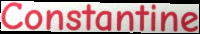
Constantine